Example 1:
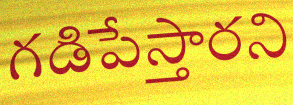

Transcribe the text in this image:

గడిపేస్తారని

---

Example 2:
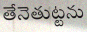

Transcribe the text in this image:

తేనెతుట్టను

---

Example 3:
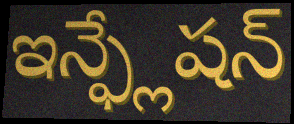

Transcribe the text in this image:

ఇన్ఫ్లేషన్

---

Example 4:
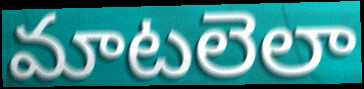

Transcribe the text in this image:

మాటలెలా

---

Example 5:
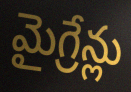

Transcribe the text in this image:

మైగ్రేన్లు